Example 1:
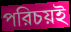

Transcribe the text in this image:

পরিচয়ই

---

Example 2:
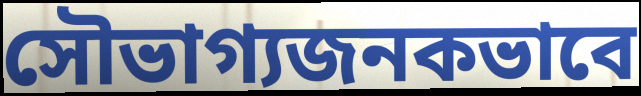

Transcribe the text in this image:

সৌভাগ্যজনকভাবে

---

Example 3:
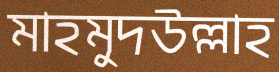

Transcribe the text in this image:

মাহমুদউল্লাহ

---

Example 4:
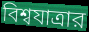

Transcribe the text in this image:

বিশ্বযাত্রার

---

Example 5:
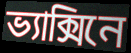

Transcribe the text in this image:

ভ্যাক্সিনে